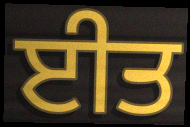
ਈਤ